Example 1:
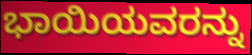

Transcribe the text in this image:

ಭಾಯಿಯವರನ್ನು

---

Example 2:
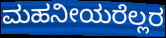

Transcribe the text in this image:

ಮಹನೀಯರೆಲ್ಲರ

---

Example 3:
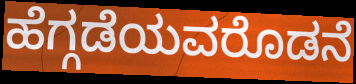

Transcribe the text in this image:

ಹೆಗ್ಗಡೆಯವರೊಡನೆ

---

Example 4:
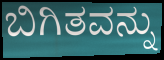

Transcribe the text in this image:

ಬಿಗಿತವನ್ನು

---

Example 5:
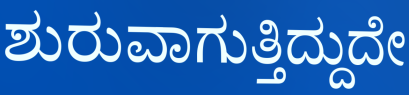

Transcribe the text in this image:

ಶುರುವಾಗುತ್ತಿದ್ದುದೇ